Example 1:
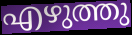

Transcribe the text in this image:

എഴുത്തു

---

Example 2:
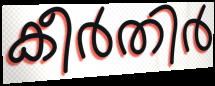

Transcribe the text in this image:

കീർതിർ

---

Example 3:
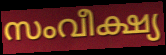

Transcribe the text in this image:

സംവീക്ഷ്യ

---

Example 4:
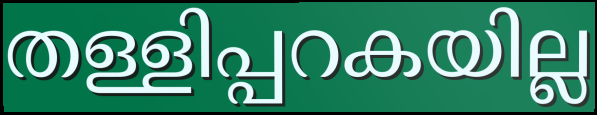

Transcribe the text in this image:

തള്ളിപ്പറകയില്ല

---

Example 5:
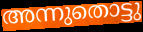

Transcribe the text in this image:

അന്നുതൊട്ടു